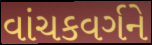
વાંચકવર્ગને